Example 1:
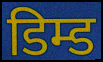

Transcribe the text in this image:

डिम्ड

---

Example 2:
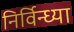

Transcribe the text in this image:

निर्विन्ध्या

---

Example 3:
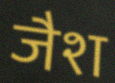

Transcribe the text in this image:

जैश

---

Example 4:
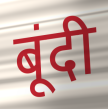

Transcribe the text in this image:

बूंदी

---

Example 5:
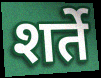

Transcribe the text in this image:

शर्ते